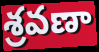
శ్రవణా